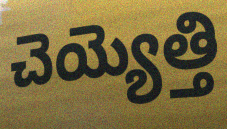
చెయ్యెత్తి